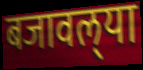
बजावल्या